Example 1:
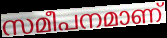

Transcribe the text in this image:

സമീപനമാണ്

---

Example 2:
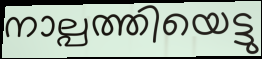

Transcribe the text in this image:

നാല്പത്തിയെട്ടു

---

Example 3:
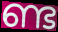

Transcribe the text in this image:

ണ്ട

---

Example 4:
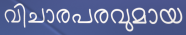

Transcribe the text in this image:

വിചാരപരവുമായ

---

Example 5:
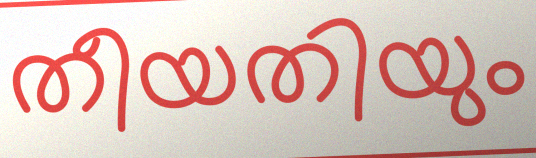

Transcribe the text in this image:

തീയതിയും